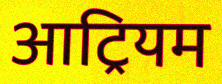
आट्रियम